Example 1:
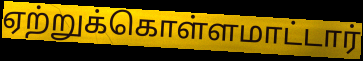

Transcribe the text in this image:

ஏற்றுக்கொள்ளமாட்டார்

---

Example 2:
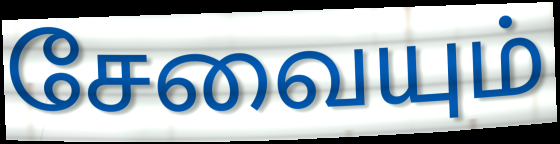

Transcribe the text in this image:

சேவையும்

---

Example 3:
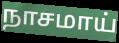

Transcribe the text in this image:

நாசமாய்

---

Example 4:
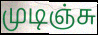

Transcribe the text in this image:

முடிஞ்சு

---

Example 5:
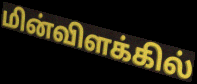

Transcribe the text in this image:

மின்விளக்கில்